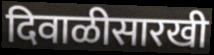
दिवाळीसारखी